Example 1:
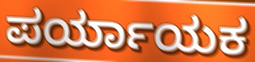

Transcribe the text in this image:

ಪರ್ಯಾಯಕ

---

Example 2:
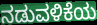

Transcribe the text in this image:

ನಡುವಳಿಕೆಯ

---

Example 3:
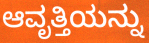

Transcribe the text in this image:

ಆವೃತ್ತಿಯನ್ನು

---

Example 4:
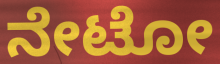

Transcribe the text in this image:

ನೇಟೋ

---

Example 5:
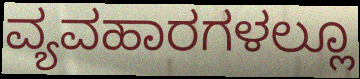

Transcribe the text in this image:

ವ್ಯವಹಾರಗಳಲ್ಲೂ